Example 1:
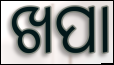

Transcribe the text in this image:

ଖପା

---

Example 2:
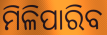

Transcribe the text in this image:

ମିଳିପାରିବ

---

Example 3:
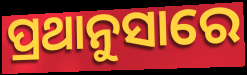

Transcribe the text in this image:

ପ୍ରଥାନୁସାରେ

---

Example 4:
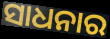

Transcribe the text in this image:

ସାଧନାର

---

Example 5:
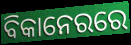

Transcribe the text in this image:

ବିକାନେରରେ